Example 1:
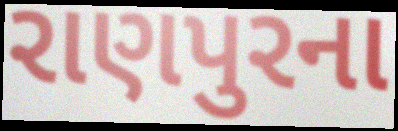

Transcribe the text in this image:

રાણપુરના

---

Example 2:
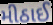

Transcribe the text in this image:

મીઠાઈ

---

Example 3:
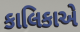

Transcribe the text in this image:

કાલિકાએ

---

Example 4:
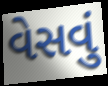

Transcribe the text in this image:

વેસવું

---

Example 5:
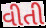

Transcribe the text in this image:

વીતી